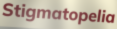
Stigmatopelia